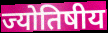
ज्योतिषीय